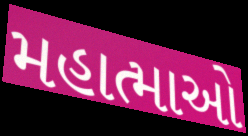
મહાત્માઓ